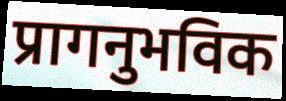
प्रागनुभविक